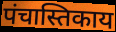
पंचास्तिकाय